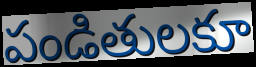
పండితులకూ